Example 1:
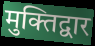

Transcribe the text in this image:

मुक्तिद्वार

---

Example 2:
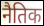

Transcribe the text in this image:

नैतिक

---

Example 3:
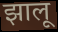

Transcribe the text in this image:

झालू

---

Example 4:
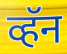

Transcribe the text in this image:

व्हॅन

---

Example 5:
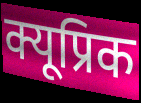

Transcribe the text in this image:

क्यूप्रिक